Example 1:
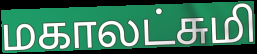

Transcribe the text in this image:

மகாலட்சுமி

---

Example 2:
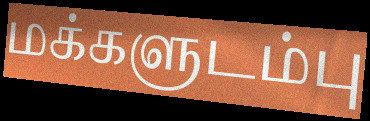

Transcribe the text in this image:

மக்களுடம்பு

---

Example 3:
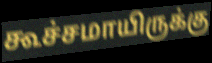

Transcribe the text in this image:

கூச்சமாயிருக்கு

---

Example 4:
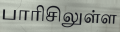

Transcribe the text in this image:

பாரிசிலுள்ள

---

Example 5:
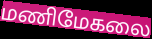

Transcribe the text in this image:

மணிமேகலை